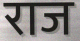
राज